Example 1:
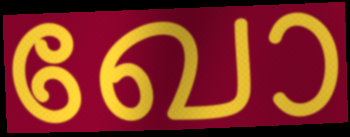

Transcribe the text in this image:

ഖോ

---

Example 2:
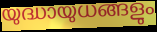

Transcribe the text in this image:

യുദ്ധായുധങ്ങളും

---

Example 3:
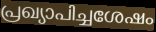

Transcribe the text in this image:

പ്രഖ്യാപിച്ചശേഷം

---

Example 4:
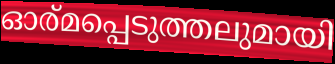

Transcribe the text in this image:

ഓര്മപ്പെടുത്തലുമായി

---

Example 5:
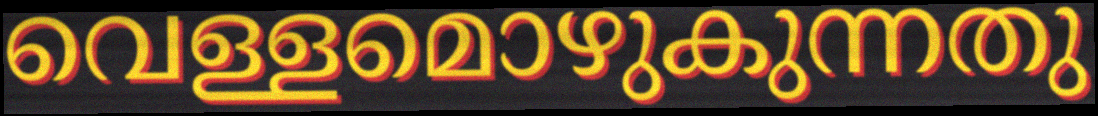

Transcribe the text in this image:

വെള്ളമൊഴുകുന്നതു